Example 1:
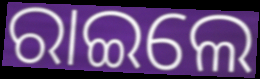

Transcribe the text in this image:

ରାଇଲେ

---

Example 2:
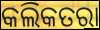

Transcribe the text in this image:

କଲିକତରା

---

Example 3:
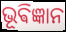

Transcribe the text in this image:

ଭୂଵିଜ୍ଞାନ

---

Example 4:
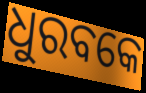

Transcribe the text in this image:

ଧୁରବକେ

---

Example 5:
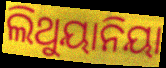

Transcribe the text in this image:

ଲିଥୁୟାନିୟା